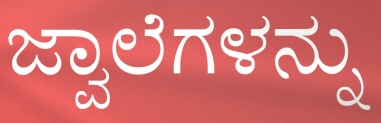
ಜ್ವಾಲೆಗಳನ್ನು